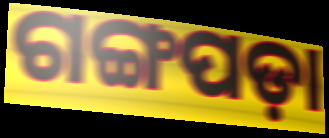
ଗଙ୍ଗପଡ଼ା